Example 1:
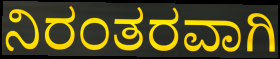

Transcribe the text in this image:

ನಿರಂತರವಾಗಿ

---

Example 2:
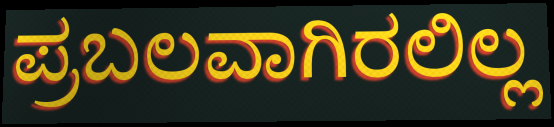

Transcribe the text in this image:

ಪ್ರಬಲವಾಗಿರಲಿಲ್ಲ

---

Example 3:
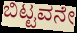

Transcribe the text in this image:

ಬಿಟ್ಟವನೇ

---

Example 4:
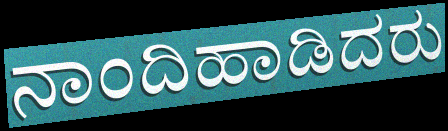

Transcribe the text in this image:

ನಾಂದಿಹಾಡಿದರು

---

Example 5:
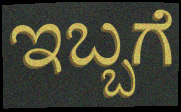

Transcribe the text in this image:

ಇಬ್ಬಗೆ